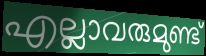
എല്ലാവരുമുണ്ട്